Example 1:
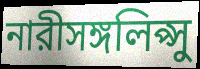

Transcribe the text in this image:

নারীসঙ্গলিপ্সু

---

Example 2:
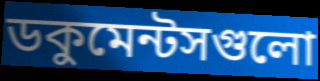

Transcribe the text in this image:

ডকুমেন্টসগুলো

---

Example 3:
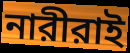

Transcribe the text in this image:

নারীরাই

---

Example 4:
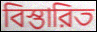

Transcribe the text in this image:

বিস্তারিত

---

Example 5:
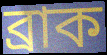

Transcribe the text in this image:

ব্রাক